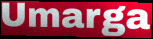
Umarga